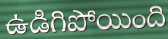
ఉడిగిపోయింది